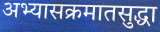
अभ्यासक्रमातसुद्धा